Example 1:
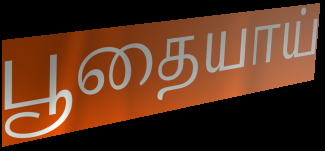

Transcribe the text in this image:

பூதையாய்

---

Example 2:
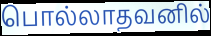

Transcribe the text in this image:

பொல்லாதவனில்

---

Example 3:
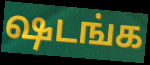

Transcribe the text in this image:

ஷடங்க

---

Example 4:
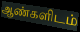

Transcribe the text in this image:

ஆண்களிடம்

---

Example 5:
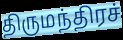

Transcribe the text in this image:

திருமந்திரச்